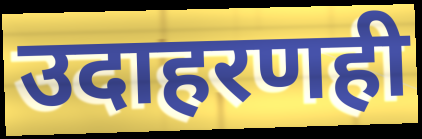
उदाहरणही